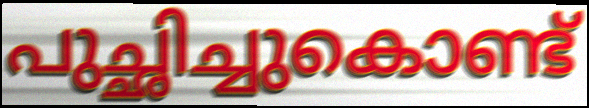
പുച്ഛിച്ചുകൊണ്ട്